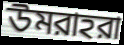
উমরাহরা